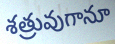
శత్రువుగానూ